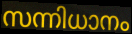
സന്നിധാനം